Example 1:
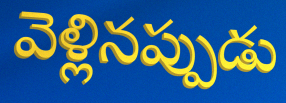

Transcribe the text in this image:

వెళ్లినప్పుడు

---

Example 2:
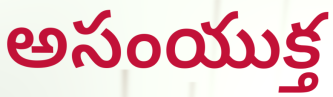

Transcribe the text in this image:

అసంయుక్త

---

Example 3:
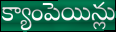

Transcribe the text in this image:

క్యాంపెయిన్లు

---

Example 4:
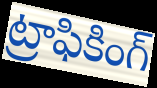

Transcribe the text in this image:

ట్రాఫికింగ్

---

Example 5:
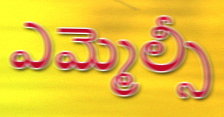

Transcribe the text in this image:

ఎమ్మెల్సీ